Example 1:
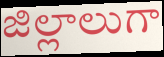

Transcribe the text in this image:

జిల్లాలుగా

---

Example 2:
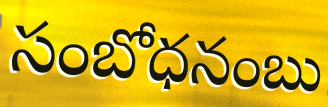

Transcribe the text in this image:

సంబోధనంబు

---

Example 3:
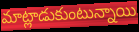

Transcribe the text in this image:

మాట్లాడుకుంటున్నాయి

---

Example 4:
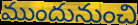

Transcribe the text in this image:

ముందునుంచి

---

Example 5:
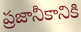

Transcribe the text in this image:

ప్రజానీకానికి